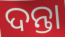
ଦନ୍ତା